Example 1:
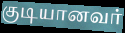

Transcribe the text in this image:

குடியானவர்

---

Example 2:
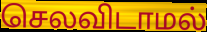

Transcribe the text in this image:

செலவிடாமல்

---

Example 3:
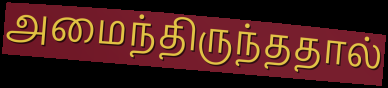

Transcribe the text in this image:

அமைந்திருந்ததால்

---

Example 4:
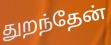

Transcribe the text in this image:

துறந்தேன்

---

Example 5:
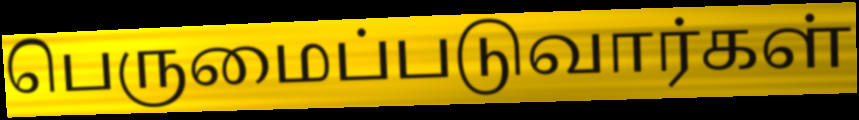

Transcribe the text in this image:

பெருமைப்படுவார்கள்